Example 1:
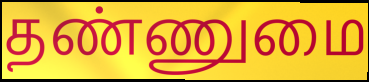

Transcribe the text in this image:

தண்ணுமை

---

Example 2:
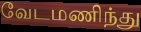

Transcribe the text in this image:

வேடமணிந்து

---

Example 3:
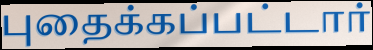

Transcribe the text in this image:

புதைக்கப்பட்டார்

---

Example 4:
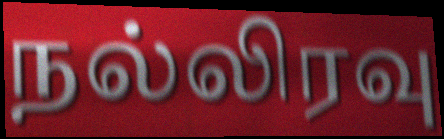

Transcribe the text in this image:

நல்லிரவு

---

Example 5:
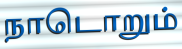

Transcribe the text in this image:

நாடொறும்